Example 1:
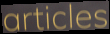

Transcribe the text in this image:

articles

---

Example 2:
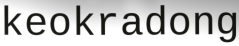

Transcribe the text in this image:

keokradong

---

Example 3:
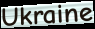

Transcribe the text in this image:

Ukraine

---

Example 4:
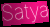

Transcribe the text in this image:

Satya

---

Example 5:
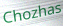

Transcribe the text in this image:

Chozhas